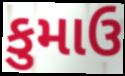
કુમાઉ